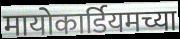
मायोकार्डियमच्या